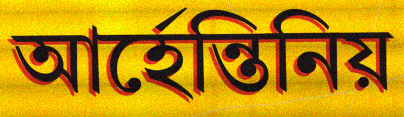
আর্হেন্তিনিয়